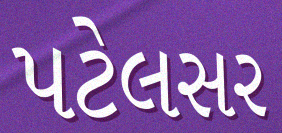
પટેલસર